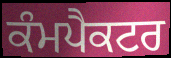
ਕੰਮਪੈਕਟਰ